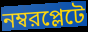
নম্বরপ্লেটে